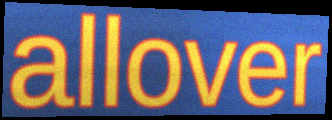
allover